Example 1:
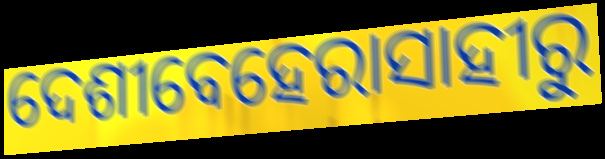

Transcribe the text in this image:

ଦେଶୀବେହେରାସାହୀରୁ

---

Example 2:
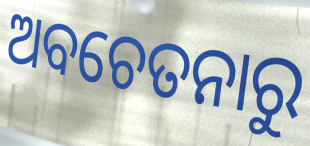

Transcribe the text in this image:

ଅବଚେତନାରୁ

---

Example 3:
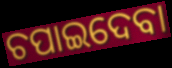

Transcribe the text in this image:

ଚପାଇଦେବା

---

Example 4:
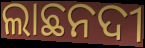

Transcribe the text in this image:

ଲାଛନଦୀ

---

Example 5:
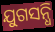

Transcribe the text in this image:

ଯୁଗସନ୍ଧି